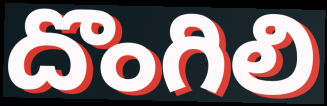
దొంగిలి